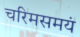
चरिमसमयं